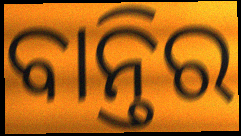
ବାନ୍ତିର